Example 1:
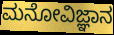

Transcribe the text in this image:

ಮನೋವಿಜ್ಞಾನ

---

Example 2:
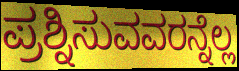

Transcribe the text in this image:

ಪ್ರಶ್ನಿಸುವವರನ್ನೆಲ್ಲ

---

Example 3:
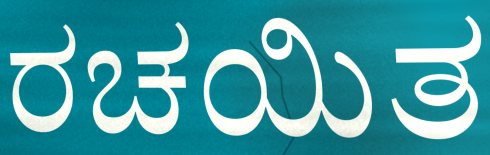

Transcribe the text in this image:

ರಚಯಿತ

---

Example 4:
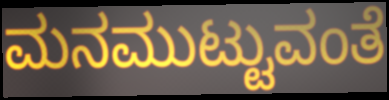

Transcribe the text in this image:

ಮನಮುಟ್ಟುವಂತೆ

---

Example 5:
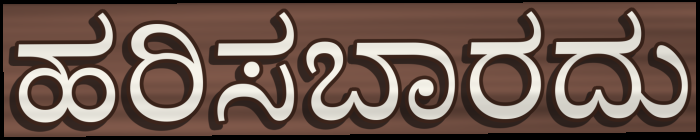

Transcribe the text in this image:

ಹರಿಸಬಾರದು